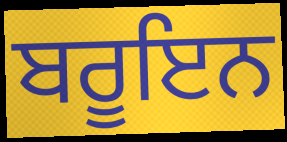
ਬਰੂਇਨ